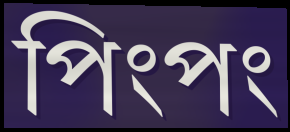
পিংপং